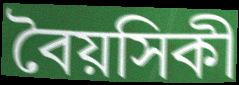
বৈয়সিকী